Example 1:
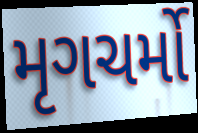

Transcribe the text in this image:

મૃગચર્મો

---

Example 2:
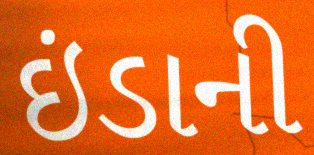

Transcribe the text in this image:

ઇંડાની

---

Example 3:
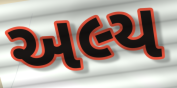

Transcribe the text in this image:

અલ્ય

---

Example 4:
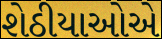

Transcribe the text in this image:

શેઠીયાઓએ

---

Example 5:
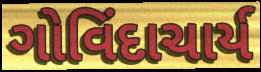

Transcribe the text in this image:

ગોવિંદાચાર્ય